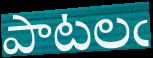
పాటలఁ